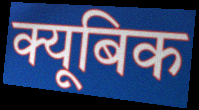
क्‍यूबिक